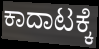
ಕಾದಾಟಕ್ಕೆ